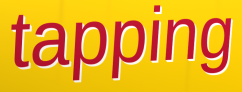
tapping